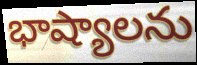
భాష్యాలను